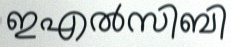
ഇഎൽസിബി